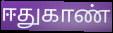
ஈதுகாண்